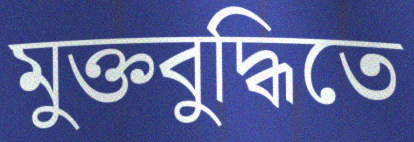
মুক্তবুদ্ধিতে